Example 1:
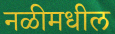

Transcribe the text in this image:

नळीमधील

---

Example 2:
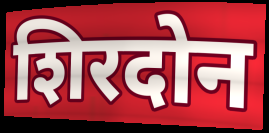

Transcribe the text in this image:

शिरदोन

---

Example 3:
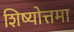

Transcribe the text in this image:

शिष्योत्तमा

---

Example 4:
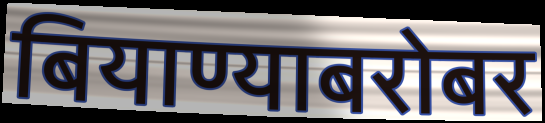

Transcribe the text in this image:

बियाण्याबरोबर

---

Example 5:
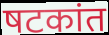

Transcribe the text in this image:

षटकांत